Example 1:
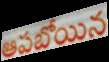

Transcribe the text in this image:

ఆపబోయిన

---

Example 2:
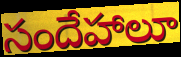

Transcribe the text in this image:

సందేహాలూ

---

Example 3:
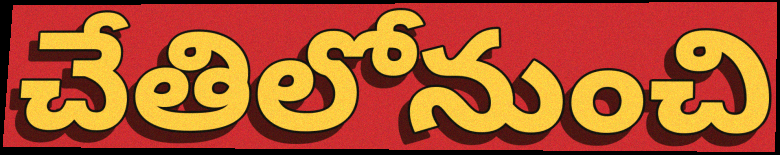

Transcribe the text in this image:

చేతిలోనుంచి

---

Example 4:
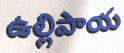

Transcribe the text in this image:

ఉల్లిపాయ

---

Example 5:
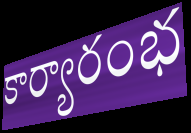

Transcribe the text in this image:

కార్యారంభ